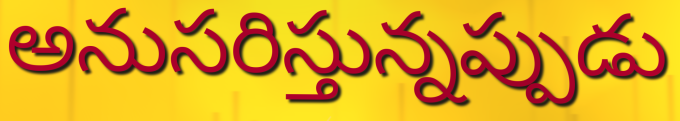
అనుసరిస్తున్నప్పుడు